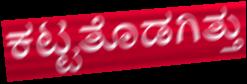
ಕಟ್ಟತೊಡಗಿತ್ತು